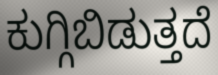
ಕುಗ್ಗಿಬಿಡುತ್ತದೆ